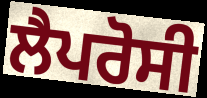
ਲੈਪਰੋਸੀ